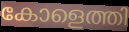
കോളെത്തി